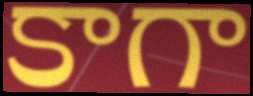
కాగా